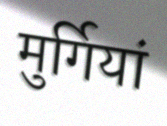
मुर्गियां